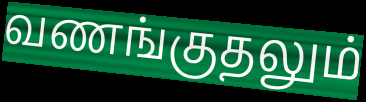
வணங்குதலும்